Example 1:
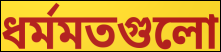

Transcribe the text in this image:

ধর্মমতগুলো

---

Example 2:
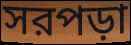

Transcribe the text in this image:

সরপড়া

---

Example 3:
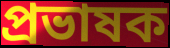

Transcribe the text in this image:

প্রভাষক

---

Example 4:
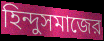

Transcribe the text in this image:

হিন্দুসমাজের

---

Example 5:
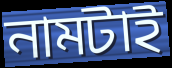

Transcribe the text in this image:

নামটাই